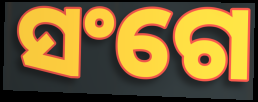
ସଂଗେ